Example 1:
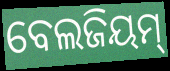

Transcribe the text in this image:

ବେଲଜିୟମ୍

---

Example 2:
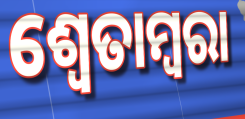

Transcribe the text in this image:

ଶ୍ୱେତାମ୍ବରା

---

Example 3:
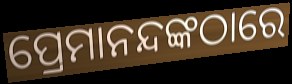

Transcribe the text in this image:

ପ୍ରେମାନନ୍ଦଙ୍କଠାରେ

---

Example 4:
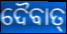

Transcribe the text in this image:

ଦୈବାତ୍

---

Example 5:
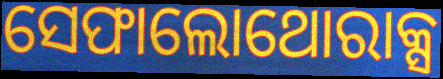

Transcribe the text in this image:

ସେଫାଲୋଥୋରାକ୍ସ